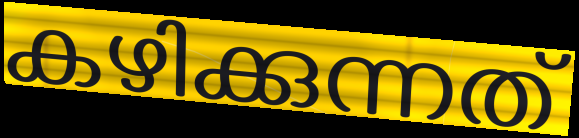
കഴിക്കുന്നത്